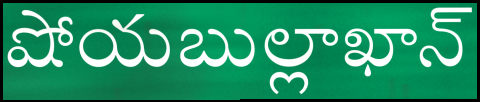
షోయబుల్లాఖాన్